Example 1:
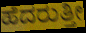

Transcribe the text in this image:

ಹೆದರುತ್ತೀ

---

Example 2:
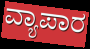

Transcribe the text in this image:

ವ್ಯಾಪಾರ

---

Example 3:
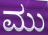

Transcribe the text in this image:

ಮು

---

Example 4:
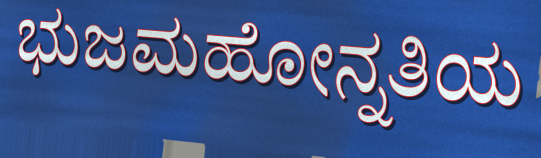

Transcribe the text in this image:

ಭುಜಮಹೋನ್ನತಿಯ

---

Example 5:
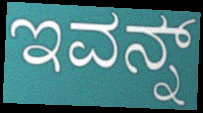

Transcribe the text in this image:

ಇವನ್ನ್